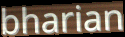
bharian